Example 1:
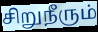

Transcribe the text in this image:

சிறுநீரும்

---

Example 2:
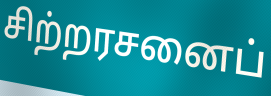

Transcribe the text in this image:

சிற்றரசனைப்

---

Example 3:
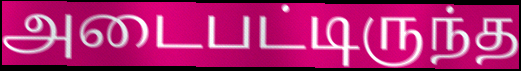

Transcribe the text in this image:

அடைபட்டிருந்த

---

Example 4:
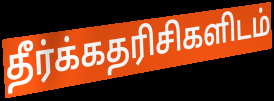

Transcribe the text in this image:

தீர்க்கதரிசிகளிடம்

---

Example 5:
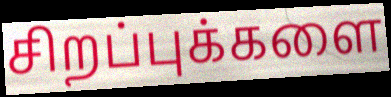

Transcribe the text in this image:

சிறப்புக்களை